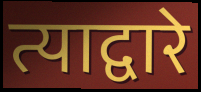
त्याद्वारे